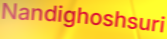
Nandighoshsuri